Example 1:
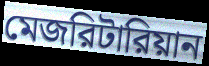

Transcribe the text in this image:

মেজরিটারিয়ান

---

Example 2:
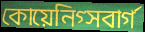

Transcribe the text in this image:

কোয়েনিগ্সবার্গ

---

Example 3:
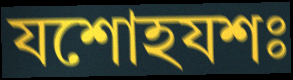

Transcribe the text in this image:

যশোহযশঃ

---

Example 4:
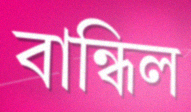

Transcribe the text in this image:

বান্ধিল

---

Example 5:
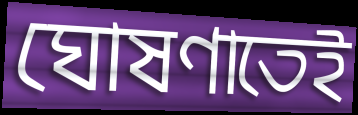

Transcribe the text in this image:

ঘোষণাতেই